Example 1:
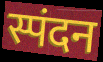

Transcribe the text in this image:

स्पंदन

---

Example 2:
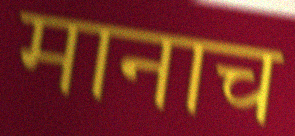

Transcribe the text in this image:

मानाच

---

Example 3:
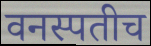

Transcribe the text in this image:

वनस्पतीच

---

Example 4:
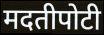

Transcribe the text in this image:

मदतीपोटी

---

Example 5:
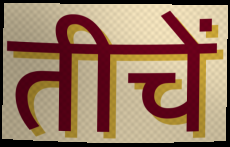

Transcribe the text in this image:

तीचें